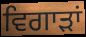
ਵਿਗਾੜਾਂ